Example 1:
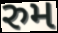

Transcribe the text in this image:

રુમ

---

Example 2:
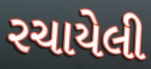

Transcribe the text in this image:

રચાયેલી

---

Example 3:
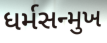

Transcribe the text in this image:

ધર્મસન્મુખ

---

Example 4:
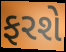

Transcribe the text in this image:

ફરશે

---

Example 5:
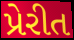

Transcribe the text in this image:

પ્રેરીત